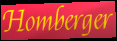
Homberger